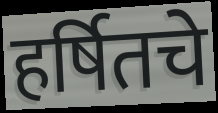
हर्षितचे